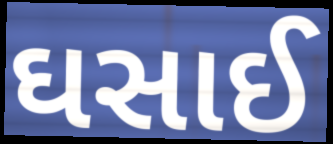
ઘસાઈ